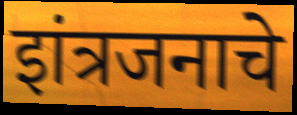
इांत्रजनाचे